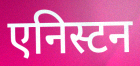
एनिस्टन